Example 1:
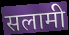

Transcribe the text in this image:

सलामी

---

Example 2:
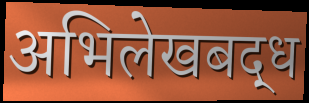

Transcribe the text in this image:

अभिलेखबद्ध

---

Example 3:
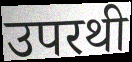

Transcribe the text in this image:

उपरथी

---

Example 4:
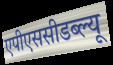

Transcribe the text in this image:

एपीएससीडब्ल्यू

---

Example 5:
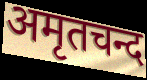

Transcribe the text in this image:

अमृतचन्द